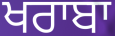
ਖਰਾਬਾ